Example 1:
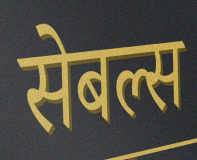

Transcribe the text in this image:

सेबल्स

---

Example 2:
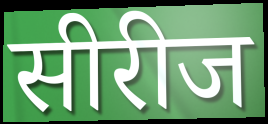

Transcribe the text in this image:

सीरीज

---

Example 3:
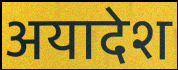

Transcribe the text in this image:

अयादेश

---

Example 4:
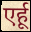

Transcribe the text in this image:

एर्हू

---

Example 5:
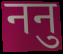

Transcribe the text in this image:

ननु